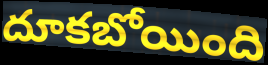
దూకబోయింది